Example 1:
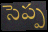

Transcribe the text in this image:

సెప్ప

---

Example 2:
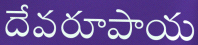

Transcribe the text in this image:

దేవరూపాయ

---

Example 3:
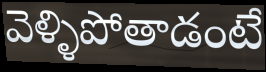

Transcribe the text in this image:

వెళ్ళిపోతాడంటే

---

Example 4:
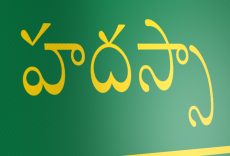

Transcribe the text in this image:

హదస్సా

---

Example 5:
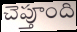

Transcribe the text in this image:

చెప్తూంది